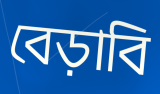
বেড়াবি